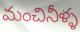
మంచినీళ్ళ